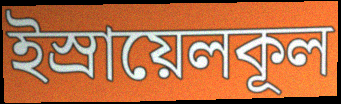
ইস্রায়েলকূল